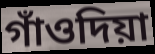
গাঁওদিয়া